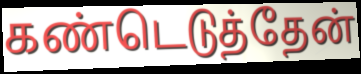
கண்டெடுத்தேன்